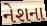
નેશના